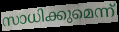
സാധിക്കുമെന്ന്